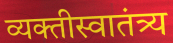
व्यक्तीस्वातंत्र्य